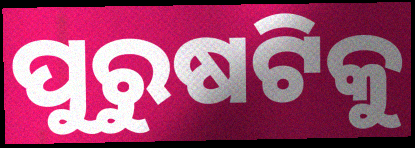
ପୁରୁଷଟିକୁ